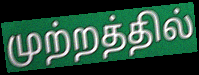
முற்றத்தில்